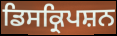
ਡਿਸਕ੍ਰਿਪਸ਼ਨ